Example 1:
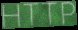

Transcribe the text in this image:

HTTP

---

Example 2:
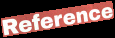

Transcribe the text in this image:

Reference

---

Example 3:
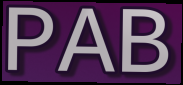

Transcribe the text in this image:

PAB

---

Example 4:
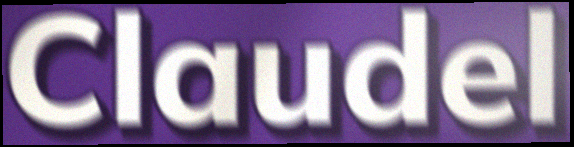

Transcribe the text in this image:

Claudel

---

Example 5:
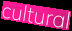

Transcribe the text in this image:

cultural